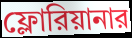
ফ্লোরিয়ানার